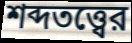
শব্দতত্ত্বের